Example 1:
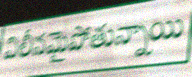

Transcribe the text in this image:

విలీనమైపోతున్నాయి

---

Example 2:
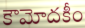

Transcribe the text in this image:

కౌమోదకీం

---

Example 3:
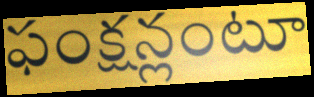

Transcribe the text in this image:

ఫంక్షన్లంటూ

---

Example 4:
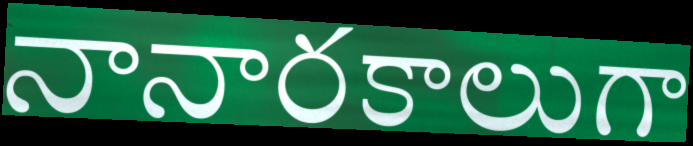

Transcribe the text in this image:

నానారకాలుగా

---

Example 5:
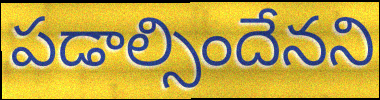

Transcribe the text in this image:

పడాల్సిందేనని